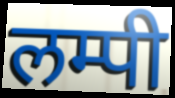
लम्पी